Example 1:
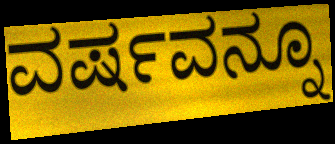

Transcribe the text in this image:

ವರ್ಷವನ್ನೂ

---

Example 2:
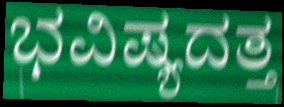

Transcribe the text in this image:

ಭವಿಷ್ಯದತ್ತ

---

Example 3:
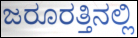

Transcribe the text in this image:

ಜರೂರತ್ತಿನಲ್ಲಿ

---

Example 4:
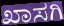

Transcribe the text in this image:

ಖಾಸಗಿ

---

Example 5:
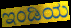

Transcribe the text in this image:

ಇಂಡಿಯ